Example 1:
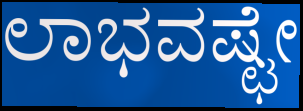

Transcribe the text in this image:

ಲಾಭವಷ್ಟೇ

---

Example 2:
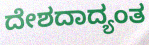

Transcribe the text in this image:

ದೇಶದಾದ್ಯಂತ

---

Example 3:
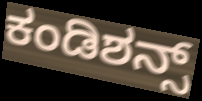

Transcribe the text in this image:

ಕಂಡಿಶನ್ಸ್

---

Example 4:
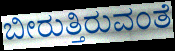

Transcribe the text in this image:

ಬೀರುತ್ತಿರುವಂತೆ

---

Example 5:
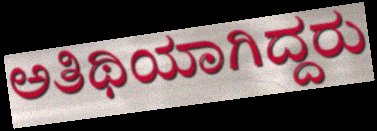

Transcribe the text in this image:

ಅತಿಥಿಯಾಗಿದ್ದರು